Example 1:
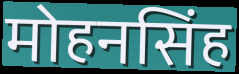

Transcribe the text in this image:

मोहनसिंह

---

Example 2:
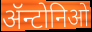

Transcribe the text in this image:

ॲन्टोनिओ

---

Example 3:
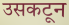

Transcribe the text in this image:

उसकटून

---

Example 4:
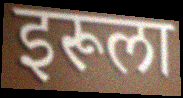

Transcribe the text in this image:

इरूला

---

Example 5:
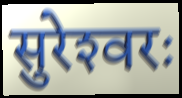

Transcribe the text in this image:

सुरेश्वरः